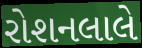
રોશનલાલે